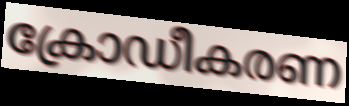
ക്രോഡീകരണ